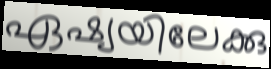
ഏഷ്യയിലേക്കു